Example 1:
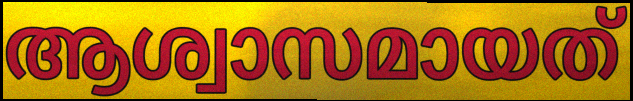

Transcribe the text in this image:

ആശ്വാസമായത്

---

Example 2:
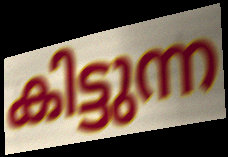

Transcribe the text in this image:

കിട്ടുന്ന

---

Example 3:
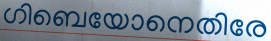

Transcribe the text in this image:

ഗിബെയോനെതിരേ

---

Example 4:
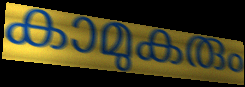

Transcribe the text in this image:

കാമുകരും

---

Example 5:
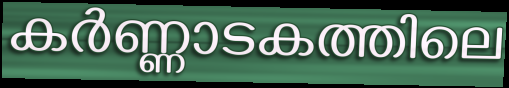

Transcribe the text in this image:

കർണ്ണാടകത്തിലെ